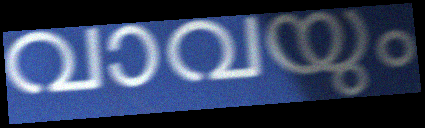
വാവയും